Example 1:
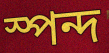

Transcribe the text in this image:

স্পন্দ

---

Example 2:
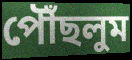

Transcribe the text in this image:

পৌঁছলুম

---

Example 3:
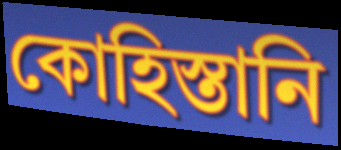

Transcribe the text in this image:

কোহিস্তানি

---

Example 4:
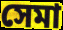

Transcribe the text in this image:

সেমা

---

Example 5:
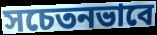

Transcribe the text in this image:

সচেতনভাবে